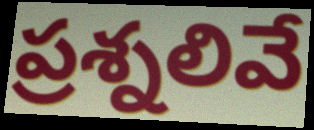
ప్రశ్నలివే